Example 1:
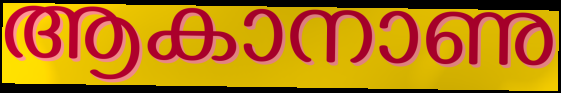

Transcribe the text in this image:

ആകാനാണു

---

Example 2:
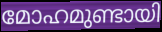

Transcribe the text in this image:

മോഹമുണ്ടായി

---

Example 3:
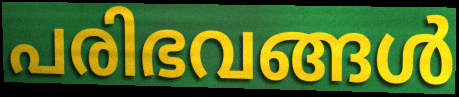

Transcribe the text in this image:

പരിഭവങ്ങൾ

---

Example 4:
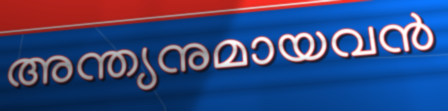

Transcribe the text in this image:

അന്ത്യനുമായവൻ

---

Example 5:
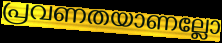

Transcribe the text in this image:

പ്രവണതയാണല്ലോ